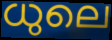
ധുലെ